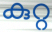
കുറ്റ